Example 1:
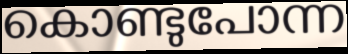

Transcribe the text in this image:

കൊണ്ടുപോന്ന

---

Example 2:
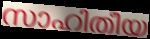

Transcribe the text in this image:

സാഹിതീയ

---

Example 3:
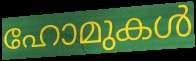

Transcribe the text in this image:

ഹോമുകൾ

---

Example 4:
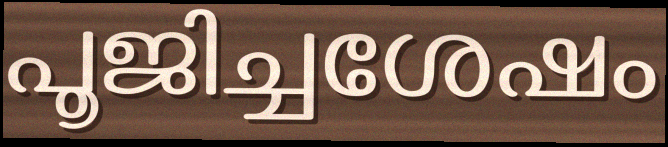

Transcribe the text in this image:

പൂജിച്ചശേഷം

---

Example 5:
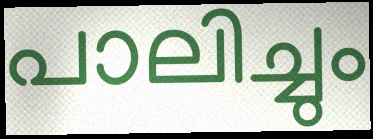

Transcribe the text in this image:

പാലിച്ചും